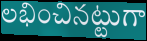
లభించినట్టుగా